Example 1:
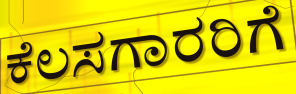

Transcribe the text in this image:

ಕೆಲಸಗಾರರಿಗೆ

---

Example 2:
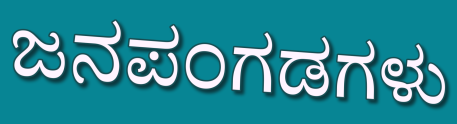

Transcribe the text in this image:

ಜನಪಂಗಡಗಳು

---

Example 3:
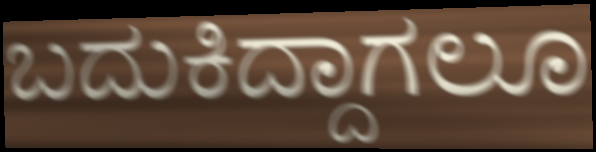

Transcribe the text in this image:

ಬದುಕಿದ್ದಾಗಲೂ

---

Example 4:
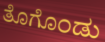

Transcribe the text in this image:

ತೊಗೊಂಡು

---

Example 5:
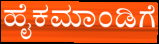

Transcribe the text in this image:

ಹೈಕಮಾಂಡಿಗೆ